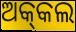
ଅକ୍‍କଲ